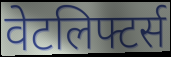
वेटलिफ्टर्स